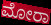
ಮೋರಾ